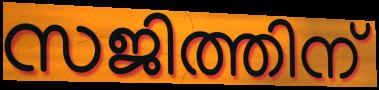
സജിത്തിന്